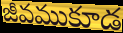
జీవముకూడ